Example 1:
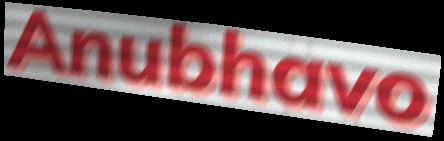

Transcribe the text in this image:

Anubhavo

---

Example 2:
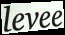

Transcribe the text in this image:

levee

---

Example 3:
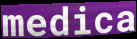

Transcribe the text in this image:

medica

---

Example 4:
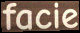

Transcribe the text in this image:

facie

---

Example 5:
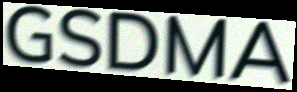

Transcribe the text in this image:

GSDMA